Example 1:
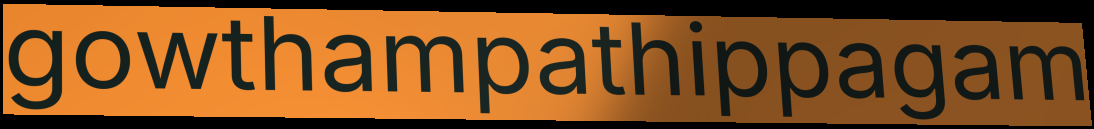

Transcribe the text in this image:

gowthampathippagam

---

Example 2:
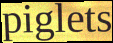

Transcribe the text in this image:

piglets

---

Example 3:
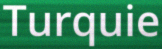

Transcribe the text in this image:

Turquie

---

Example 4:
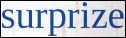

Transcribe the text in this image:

surprize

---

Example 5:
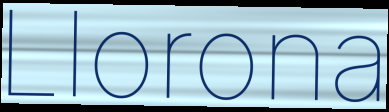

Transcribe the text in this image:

Llorona